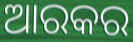
ଆରକର